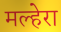
मल्हेरा